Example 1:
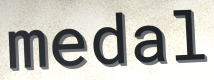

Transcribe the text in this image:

medal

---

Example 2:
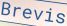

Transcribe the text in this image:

Brevis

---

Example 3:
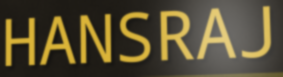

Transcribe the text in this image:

HANSRAJ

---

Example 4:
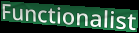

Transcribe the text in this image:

Functionalist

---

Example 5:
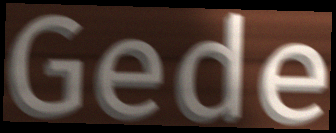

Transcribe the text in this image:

Gede